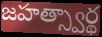
జహత్స్వార్థ